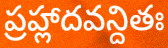
ప్రహ్లాదవన్దితః